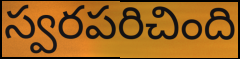
స్వరపరిచింది